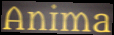
Anima